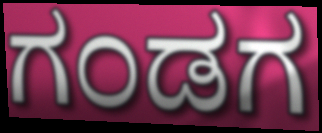
ಗಂಡಗ